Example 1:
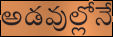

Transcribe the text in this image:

అడవుల్లోనే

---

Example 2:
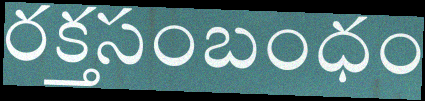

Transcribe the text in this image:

రక్తసంబంధం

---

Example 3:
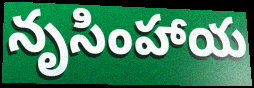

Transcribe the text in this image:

నృసింహాయ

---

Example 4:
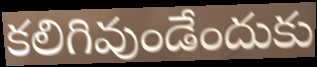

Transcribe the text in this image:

కలిగివుండేందుకు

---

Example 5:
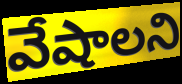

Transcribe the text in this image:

వేషాలని